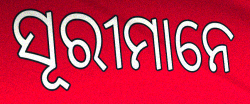
ସୂରୀମାନେ